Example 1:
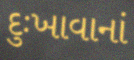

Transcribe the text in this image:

દુઃખાવાનાં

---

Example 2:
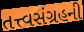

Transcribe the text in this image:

તત્ત્વસંગ્રહની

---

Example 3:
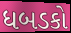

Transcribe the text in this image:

ધબડકો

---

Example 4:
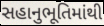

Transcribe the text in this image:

સહાનુભૂતિમાંથી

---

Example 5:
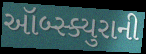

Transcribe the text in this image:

ઑબ્સ્ક્યુરાની